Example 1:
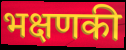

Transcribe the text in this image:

भक्षणकी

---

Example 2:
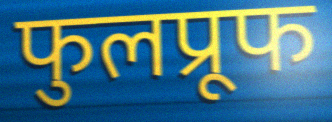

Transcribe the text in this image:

फुलप्रूफ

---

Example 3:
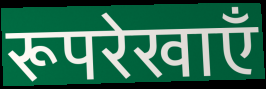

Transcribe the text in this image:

रूपरेखाएँ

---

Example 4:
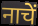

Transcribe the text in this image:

नाचें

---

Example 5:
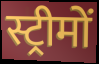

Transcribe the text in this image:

स्ट्रीमों